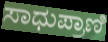
ಸಾಧುಪ್ರಾಣಿ